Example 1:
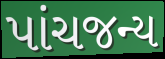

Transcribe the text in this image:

પાંચજન્ય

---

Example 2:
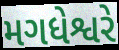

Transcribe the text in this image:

મગધેશ્વરે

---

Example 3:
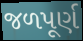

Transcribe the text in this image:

જળપૂર્ણ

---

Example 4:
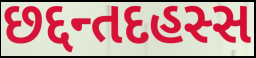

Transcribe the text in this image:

છદ્દન્તદહસ્સ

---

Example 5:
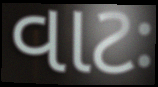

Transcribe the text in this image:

વાટઃ